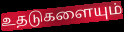
உதடுகளையும்